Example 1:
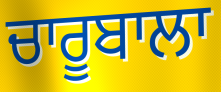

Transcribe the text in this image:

ਚਾਰੂਬਾਲਾ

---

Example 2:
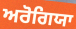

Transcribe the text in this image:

ਅਰੋਗਿਯਾ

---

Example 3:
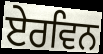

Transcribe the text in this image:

ਏਰਵਿਨ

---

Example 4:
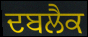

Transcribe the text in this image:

ਦਬਲੈਕ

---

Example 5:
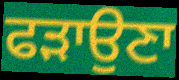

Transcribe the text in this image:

ਫੜਾਉਣਾ